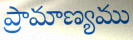
ప్రామాణ్యము